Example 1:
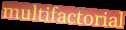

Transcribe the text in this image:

multifactorial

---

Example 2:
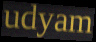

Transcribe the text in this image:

udyam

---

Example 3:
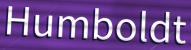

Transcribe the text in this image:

Humboldt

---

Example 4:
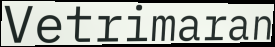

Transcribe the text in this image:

Vetrimaran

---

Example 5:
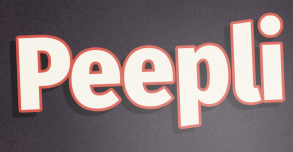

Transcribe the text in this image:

Peepli